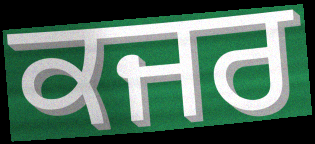
ਕਜਰ